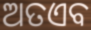
ଅତଏବ